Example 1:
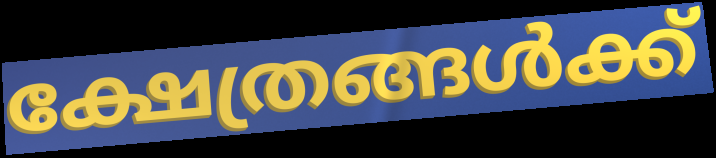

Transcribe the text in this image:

ക്ഷേത്രങ്ങൾക്ക്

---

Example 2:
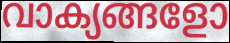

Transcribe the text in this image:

വാക്യങ്ങളോ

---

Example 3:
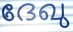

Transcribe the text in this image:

ദേഖു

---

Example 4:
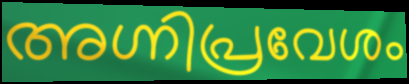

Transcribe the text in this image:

അഗ്നിപ്രവേശം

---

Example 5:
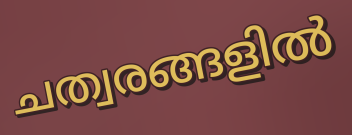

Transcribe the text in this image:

ചത്വരങ്ങളിൽ